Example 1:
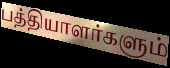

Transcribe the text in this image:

பத்தியாளர்களும்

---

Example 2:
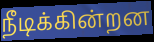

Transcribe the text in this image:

நீடிக்கின்றன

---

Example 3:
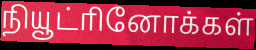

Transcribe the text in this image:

நியூட்ரினோக்கள்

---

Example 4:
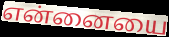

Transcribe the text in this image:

என்னையை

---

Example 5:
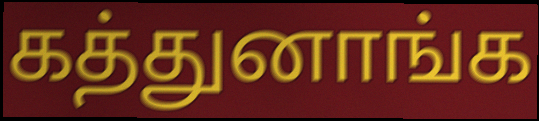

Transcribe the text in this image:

கத்துனாங்க